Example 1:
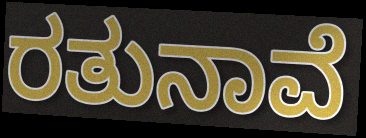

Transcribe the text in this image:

ರತುನಾವೆ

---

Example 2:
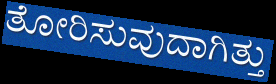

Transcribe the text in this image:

ತೋರಿಸುವುದಾಗಿತ್ತು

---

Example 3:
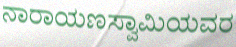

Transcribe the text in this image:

ನಾರಾಯಣಸ್ವಾಮಿಯವರ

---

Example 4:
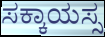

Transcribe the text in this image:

ಸಕ್ಕಾಯಸ್ಸ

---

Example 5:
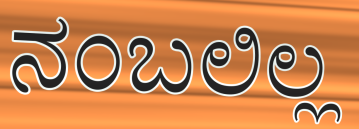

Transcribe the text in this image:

ನಂಬಲಿಲ್ಲ